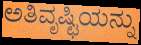
ಅತಿವೃಷ್ಟಿಯನ್ನು